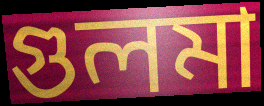
গুলমা